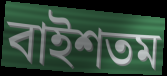
বাইশতম